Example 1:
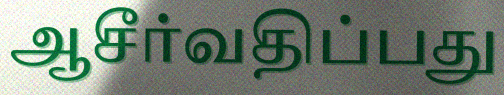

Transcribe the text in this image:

ஆசீர்வதிப்பது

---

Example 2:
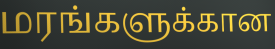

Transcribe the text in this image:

மரங்களுக்கான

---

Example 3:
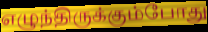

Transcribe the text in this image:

எழுந்திருக்கும்போது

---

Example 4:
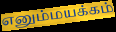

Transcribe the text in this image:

எனும்மயக்கம்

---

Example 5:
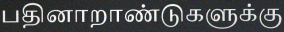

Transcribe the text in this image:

பதினாறாண்டுகளுக்கு